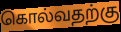
கொல்வதற்கு